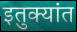
इतुक्यांत